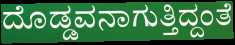
ದೊಡ್ಡವನಾಗುತ್ತಿದ್ದಂತೆ